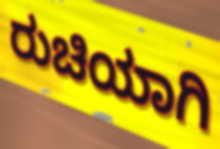
ರುಚಿಯಾಗಿ